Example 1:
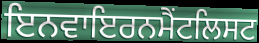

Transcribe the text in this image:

ਇਨਵਾਇਰਨਮੈਂਟਲਿਸਟ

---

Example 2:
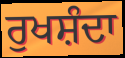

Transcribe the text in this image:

ਰੁਖਸ਼ੰਦਾ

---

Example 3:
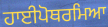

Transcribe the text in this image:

ਹਾਈਪੋਥਰਮਿਆ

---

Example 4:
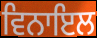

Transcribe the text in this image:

ਵਿਨਾਇਲ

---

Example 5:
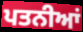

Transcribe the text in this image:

ਪਤਨੀਆਂ